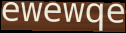
ewewqe